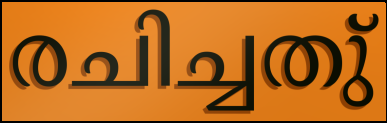
രചിച്ചതു്